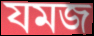
যমজ